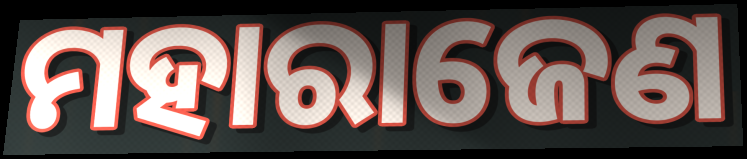
ମହାରାଜେଣ